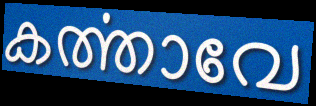
കൎത്താവേ